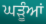
ਘੜੂੰਆਂ